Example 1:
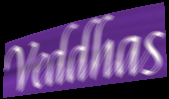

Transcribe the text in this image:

Veddhas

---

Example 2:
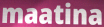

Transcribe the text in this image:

maatina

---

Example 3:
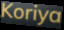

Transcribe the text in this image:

Koriya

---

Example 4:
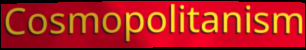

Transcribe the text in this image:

Cosmopolitanism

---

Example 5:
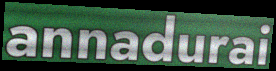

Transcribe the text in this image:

annadurai